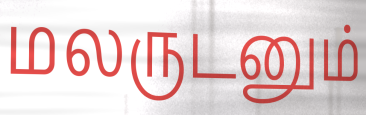
மலருடனும்